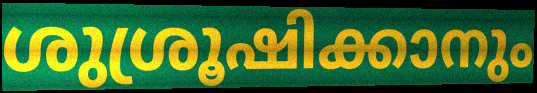
ശുശ്രൂഷിക്കാനും